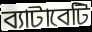
ব্যাটাবেটি